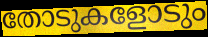
തോടുകളോടും